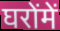
घरोंमें